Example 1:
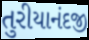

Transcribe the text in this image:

તુરીયાનંદજી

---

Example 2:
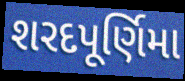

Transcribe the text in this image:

શરદપૂર્ણિમા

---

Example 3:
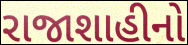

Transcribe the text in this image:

રાજાશાહીનો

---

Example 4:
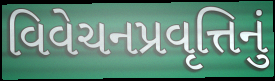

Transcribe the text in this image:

વિવેચનપ્રવૃત્તિનું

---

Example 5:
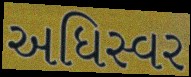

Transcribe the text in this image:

અધિસ્વર